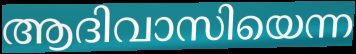
ആദിവാസിയെന്ന